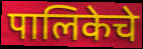
पालिकेचे